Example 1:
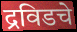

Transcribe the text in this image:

द्रविडचे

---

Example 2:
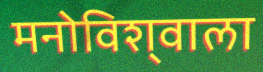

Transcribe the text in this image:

मनोविश्वाला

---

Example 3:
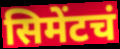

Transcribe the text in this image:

सिमेंटचं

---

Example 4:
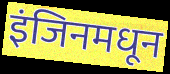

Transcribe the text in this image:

इंजिनमधून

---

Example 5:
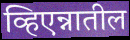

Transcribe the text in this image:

व्हिएन्नातील